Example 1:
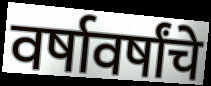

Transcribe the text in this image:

वर्षावर्षांचे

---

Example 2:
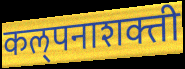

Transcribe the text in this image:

कल्पनाशक्ती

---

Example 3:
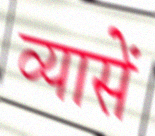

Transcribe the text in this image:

व्यासें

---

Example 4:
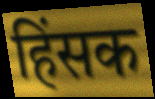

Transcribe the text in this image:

हिंसक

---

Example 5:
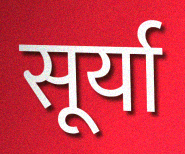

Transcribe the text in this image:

सूर्या